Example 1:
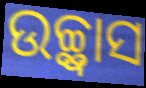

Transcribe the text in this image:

ଉଚ୍ଛ୍ୱାସ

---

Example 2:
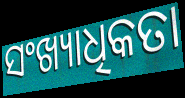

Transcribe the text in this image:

ସଂଖ୍ୟାଧିକତା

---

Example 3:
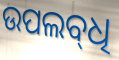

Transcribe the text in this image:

ଉପଲବ୍‌ଧି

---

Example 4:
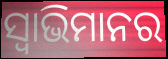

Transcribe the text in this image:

ସ୍ଵାଭିମାନର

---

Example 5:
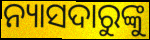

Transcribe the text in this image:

ନ୍ୟାସଦାରୁଙ୍କୁ